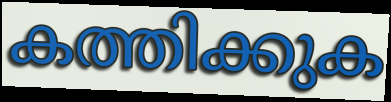
കത്തിക്കുക